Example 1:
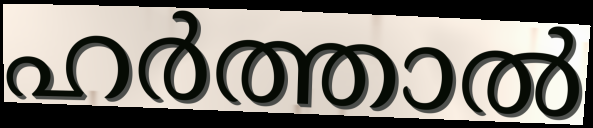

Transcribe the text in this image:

ഹർത്താൽ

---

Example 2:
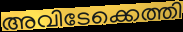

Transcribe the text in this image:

അവിടേക്കെത്തി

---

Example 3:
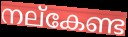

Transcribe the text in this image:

നല്കേണ്ട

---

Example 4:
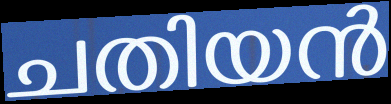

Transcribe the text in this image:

ചതിയൻ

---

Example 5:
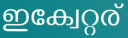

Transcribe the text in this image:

ഇക്വേറ്റര്